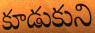
కూడుకుని